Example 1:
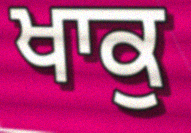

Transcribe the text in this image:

ਖਾਕੁ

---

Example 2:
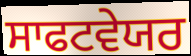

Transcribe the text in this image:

ਸਾਫਟਵੇਯਰ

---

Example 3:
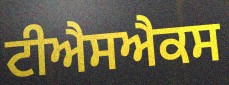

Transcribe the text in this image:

ਟੀਐਸਐਕਸ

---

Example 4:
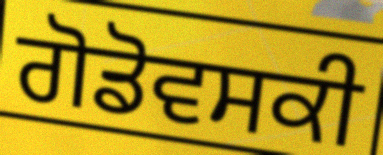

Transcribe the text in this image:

ਗੋਡੋਵਸਕੀ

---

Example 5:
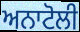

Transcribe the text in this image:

ਅਨਾਟੋਲੀ